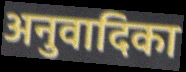
अनुवादिका